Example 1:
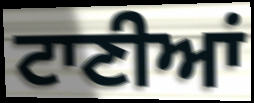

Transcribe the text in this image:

ਟਾਣੀਆਂ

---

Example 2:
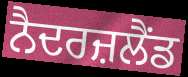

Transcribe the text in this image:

ਨੈਦਰਜ਼ਲੈਂਡ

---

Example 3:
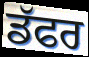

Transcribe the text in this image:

ਡੱਫਰ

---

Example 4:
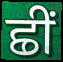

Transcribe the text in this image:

ਛੀਂ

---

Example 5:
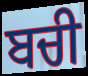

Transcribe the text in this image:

ਬਚੀ